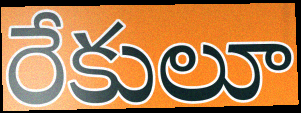
రేకులూ